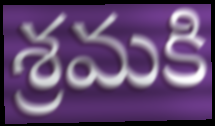
శ్రమకి